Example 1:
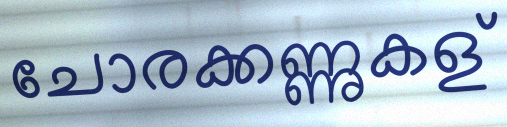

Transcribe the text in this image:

ചോരക്കണ്ണുകള്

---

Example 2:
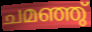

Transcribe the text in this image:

ചമഞ്ഞു്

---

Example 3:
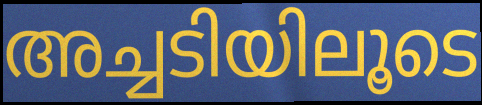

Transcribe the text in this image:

അച്ചടിയിലൂടെ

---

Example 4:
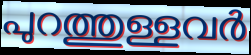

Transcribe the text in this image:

പുറത്തുള്ളവർ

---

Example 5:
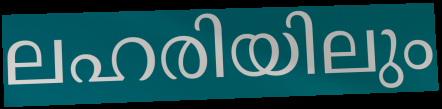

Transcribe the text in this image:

ലഹരിയിലും